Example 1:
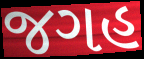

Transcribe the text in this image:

જગહ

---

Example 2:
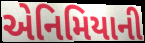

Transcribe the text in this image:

એનિમિયાની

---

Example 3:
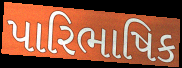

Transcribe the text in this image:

પારિભાષિક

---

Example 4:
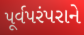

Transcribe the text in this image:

પૂર્વપરંપરાને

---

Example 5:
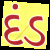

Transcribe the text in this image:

દંડ